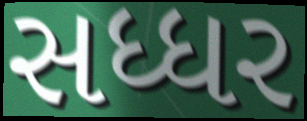
સધ્ધર